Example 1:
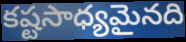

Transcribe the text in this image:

కష్టసాధ్యమైనది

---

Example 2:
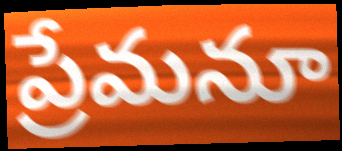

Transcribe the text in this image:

ప్రేమనూ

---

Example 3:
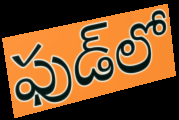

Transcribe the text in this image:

ఫుడ్‌లో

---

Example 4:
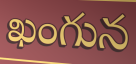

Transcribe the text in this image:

ఖంగున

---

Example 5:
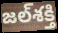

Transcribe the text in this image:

జల్‌శక్తి